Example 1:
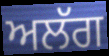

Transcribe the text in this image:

ਅਲੱਗ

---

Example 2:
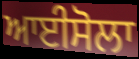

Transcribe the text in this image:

ਆਈਸੋਲਾ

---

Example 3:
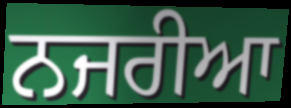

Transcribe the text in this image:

ਨਜਰੀਆ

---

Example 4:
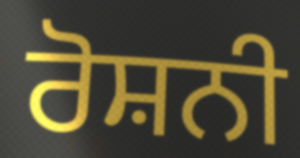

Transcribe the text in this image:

ਰੋਸ਼ਨੀ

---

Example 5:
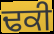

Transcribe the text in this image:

ਢਕੀ